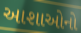
આશાઓનો